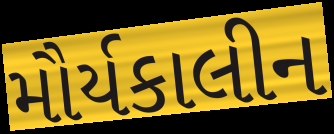
મૌર્યકાલીન